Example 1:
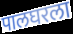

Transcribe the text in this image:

पालघरला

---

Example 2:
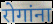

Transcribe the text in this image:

रोगांना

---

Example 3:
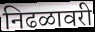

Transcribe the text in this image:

निढळावरी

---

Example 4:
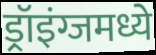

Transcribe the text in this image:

ड्रॉइंग्जमध्ये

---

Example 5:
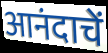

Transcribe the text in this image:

आनंदाचें